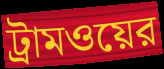
ট্রামওয়ের